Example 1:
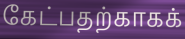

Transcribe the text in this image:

கேட்பதற்காகக்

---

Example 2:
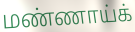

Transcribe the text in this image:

மண்ணாய்க்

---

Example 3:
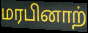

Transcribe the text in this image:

மரபினாற்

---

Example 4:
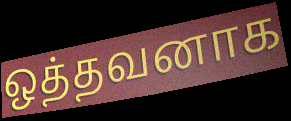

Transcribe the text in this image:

ஒத்தவனாக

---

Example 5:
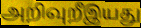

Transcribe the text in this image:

அறிவுறீஇயது